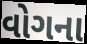
વોગના